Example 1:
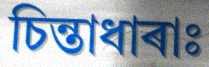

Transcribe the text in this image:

চিন্তাধাৰাঃ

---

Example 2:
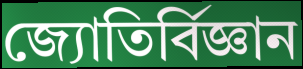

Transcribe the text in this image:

জ্যোতিৰ্বিজ্ঞান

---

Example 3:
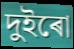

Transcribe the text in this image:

দুইৰো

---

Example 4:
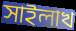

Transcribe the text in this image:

সাইলাখ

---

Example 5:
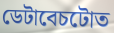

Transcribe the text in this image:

ডেটাবেচটোত